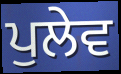
ਪੁਲੇਵ